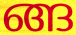
ങ്ങ